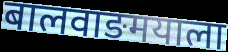
बालवाङमयाला